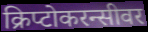
क्रिप्टोकरन्सीवर